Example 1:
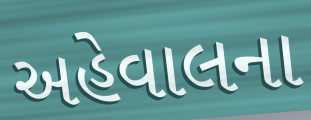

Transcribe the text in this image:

અહેવાલના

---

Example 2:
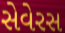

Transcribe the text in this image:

સેવેરસ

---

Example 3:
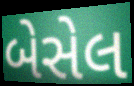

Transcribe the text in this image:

બેસેલ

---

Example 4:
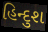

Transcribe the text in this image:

હિન્દુશ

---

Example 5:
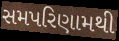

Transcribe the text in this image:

સમપરિણામથી